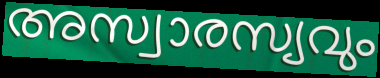
അസ്വാരസ്യവും